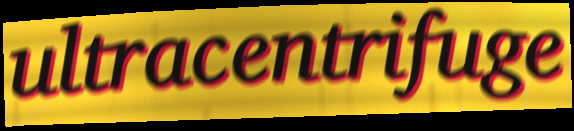
ultracentrifuge